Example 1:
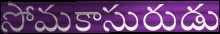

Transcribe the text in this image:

సోమకాసురుడు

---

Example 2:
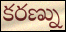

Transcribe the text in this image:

కరణ్ను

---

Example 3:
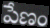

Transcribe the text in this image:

పేణం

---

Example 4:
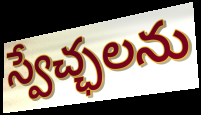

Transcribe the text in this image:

స్వేచ్ఛలను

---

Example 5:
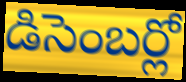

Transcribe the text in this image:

డిసెంబర్లో